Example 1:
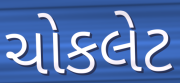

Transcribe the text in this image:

ચોકલેટ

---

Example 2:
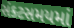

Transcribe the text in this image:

સંકટસમયમાં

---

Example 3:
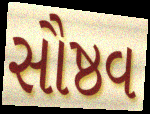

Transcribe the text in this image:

સૌષ્ઠવ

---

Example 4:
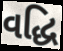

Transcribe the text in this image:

વદ્ધિ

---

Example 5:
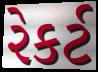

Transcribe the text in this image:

રેકર્ટ